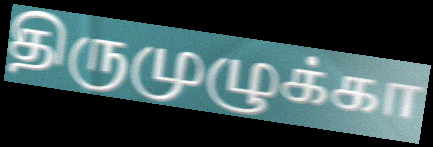
திருமுழுக்கா